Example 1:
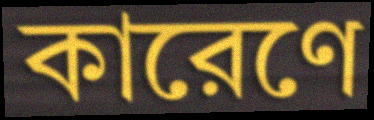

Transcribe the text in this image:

কারেণে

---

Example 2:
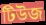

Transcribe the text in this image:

টিউজ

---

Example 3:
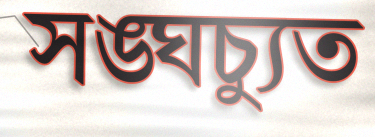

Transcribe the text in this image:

সঙ্ঘচ্যুত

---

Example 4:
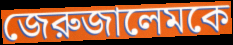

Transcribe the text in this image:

জেরুজালেমকে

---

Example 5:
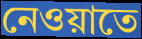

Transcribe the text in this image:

নেওয়াতে